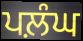
ਪਲ਼ੰਘ